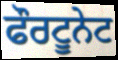
ਫੌਰਟੂਨੇਟ